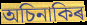
অচিনাকিৰ